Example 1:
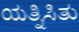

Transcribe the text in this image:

ಯತ್ನಿಸಿತು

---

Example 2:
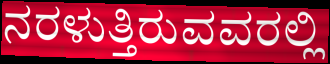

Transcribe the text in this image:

ನರಳುತ್ತಿರುವವರಲ್ಲಿ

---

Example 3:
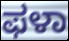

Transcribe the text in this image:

ಫಳಾ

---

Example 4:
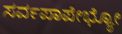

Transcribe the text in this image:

ಸರ್ವಪಾಪೇಭ್ಯೋ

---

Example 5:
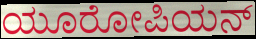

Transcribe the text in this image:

ಯೂರೋಪಿಯನ್